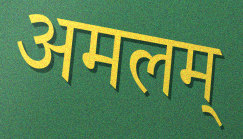
अमलम्